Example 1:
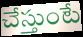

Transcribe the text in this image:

చేస్తుంటే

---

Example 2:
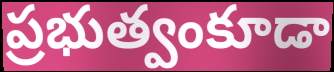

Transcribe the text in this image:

ప్రభుత్వంకూడా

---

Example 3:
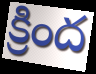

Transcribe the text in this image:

క్రింద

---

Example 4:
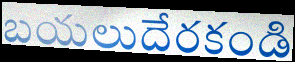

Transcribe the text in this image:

బయలుదేరకండి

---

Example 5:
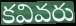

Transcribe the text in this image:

కవివరు